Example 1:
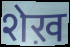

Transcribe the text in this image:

शेख़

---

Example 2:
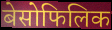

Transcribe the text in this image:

बेसोफिलिक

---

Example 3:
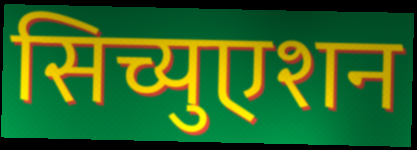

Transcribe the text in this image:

सिच्युएशन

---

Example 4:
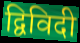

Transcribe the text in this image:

द्विविदी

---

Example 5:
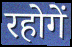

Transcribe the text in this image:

रहोगें